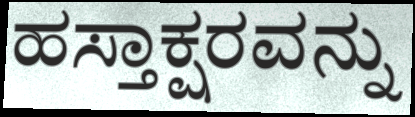
ಹಸ್ತಾಕ್ಷರವನ್ನು